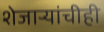
शेजाऱ्यांचीही